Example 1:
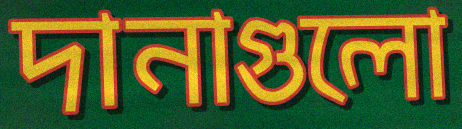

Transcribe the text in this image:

দানাগুলো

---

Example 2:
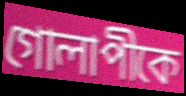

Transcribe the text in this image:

গোলাপীকে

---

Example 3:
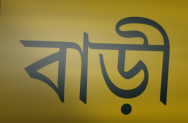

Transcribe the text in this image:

বাড়ী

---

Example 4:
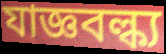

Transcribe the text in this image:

যাজ্ঞবল্ক্য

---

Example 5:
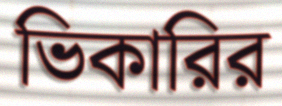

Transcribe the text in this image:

ভিকারির